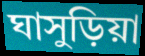
ঘাসুড়িয়া